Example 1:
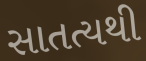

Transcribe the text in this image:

સાતત્યથી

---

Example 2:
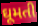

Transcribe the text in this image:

ઘૂમતી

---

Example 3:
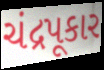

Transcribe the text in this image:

ચંદ્રપૂકાર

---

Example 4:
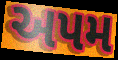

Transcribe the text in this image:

અપમ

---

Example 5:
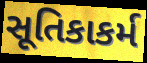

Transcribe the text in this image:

સૂતિકાકર્મ